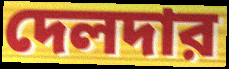
দেলদার